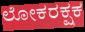
ಲೋಕರಕ್ಷಕ